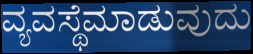
ವ್ಯವಸ್ಥೆಮಾಡುವುದು